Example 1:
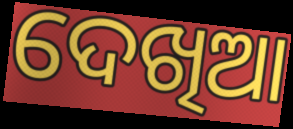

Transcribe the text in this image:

ଦେଖିଆ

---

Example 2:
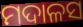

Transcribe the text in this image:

ମଦାଳସ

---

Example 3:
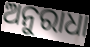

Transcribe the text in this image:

ଅନୁରାଧା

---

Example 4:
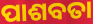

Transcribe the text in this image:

ପାଶବତା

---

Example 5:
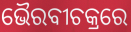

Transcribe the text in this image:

ଭୈରବୀଚକ୍ରରେ